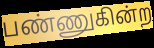
பண்ணுகின்ற